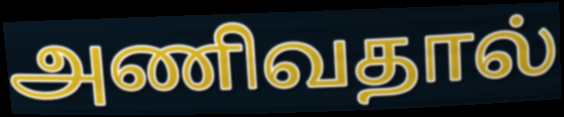
அணிவதால்